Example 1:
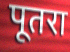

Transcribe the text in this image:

पूतरा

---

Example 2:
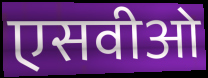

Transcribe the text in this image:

एसवीओ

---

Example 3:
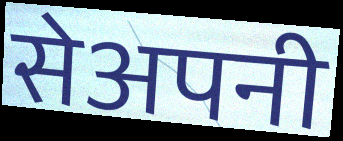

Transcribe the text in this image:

सेअपनी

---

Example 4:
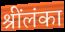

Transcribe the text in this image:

श्रींलंका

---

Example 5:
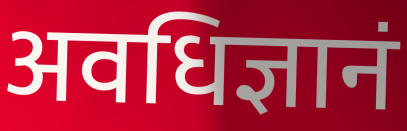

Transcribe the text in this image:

अवधिज्ञानं